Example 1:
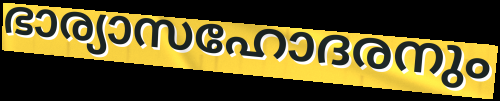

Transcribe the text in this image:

ഭാര്യാസഹോദരനും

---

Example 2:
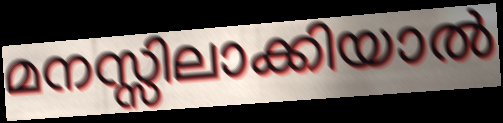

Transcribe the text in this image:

മനസ്സിലാക്കിയാൽ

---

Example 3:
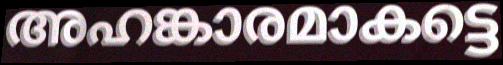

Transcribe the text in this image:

അഹങ്കാരമാകട്ടെ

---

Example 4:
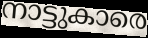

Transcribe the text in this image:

നാട്ടുകാരെ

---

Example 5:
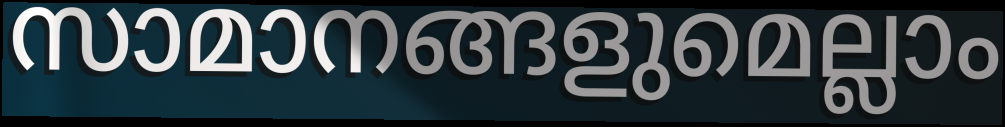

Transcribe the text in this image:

സാമാനങ്ങളുമെല്ലാം